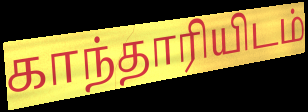
காந்தாரியிடம்